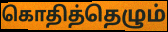
கொதித்தெழும்